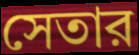
সেতার